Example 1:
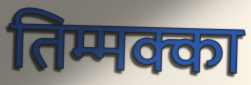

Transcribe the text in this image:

तिम्मक्का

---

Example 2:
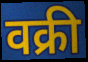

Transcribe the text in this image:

वक्री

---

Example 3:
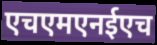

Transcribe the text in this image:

एचएमएनईएच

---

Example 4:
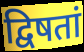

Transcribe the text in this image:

द्विषतां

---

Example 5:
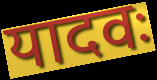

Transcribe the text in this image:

यादवः